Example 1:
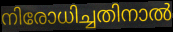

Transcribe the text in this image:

നിരോധിച്ചതിനാൽ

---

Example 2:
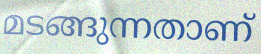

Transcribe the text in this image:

മടങ്ങുന്നതാണ്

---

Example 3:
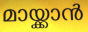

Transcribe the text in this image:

മായ്ക്കാൻ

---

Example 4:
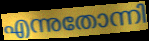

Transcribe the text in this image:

എന്നുതോന്നി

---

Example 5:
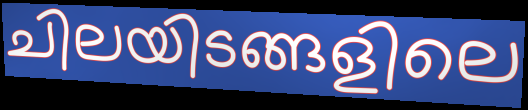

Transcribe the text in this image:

ചിലയിടങ്ങളിലെ